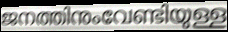
ജനത്തിനുംവേണ്ടിയുള്ള